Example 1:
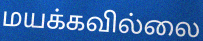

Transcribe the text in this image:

மயக்கவில்லை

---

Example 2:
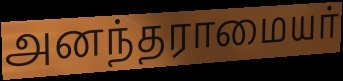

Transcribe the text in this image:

அனந்தராமையர்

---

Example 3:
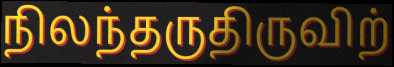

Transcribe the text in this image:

நிலந்தருதிருவிற்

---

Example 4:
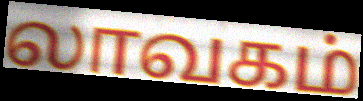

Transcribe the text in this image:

லாவகம்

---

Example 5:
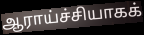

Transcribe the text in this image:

ஆராய்ச்சியாகக்